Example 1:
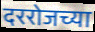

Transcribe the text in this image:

दररोजच्या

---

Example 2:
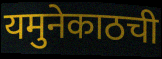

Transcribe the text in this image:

यमुनेकाठची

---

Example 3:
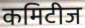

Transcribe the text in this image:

कमिटीज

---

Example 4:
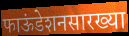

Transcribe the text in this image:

फाऊंडेशनसारख्या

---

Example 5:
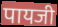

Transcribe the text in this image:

पायजी